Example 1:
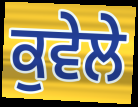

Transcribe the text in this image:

ਕੁਵੇਲੇ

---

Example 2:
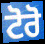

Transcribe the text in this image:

ਟੋਰੋ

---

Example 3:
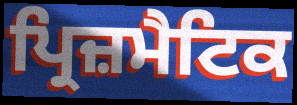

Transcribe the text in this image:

ਪ੍ਰਿਜ਼ਮੈਟਿਕ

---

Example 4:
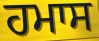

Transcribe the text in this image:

ਹਮਾਸ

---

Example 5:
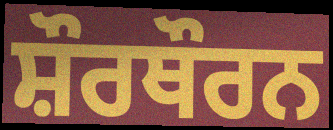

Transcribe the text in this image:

ਸ਼ੌਰਥੌਰਨ